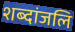
शब्दांजलि